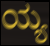
ಯ್ಯ